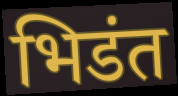
भिडंत